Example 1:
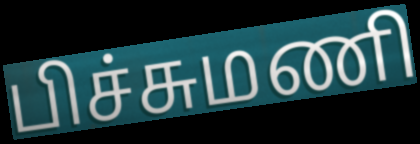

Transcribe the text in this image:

பிச்சுமணி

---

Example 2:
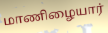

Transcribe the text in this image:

மாணிழையார்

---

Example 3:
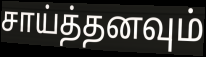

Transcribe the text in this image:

சாய்த்தனவும்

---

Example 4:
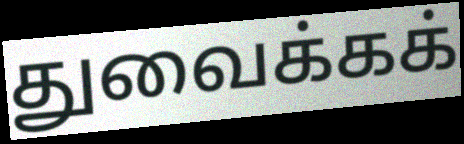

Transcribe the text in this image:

துவைக்கக்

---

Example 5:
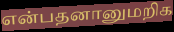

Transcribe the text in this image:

என்பதனானுமறிக